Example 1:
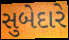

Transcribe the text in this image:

સુબેદારે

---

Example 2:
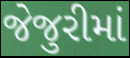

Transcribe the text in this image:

જેજુરીમાં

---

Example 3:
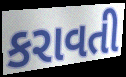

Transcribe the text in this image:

કરાવતી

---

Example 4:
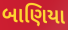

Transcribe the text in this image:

બાણિયા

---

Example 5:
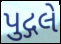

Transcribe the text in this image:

પુદ્ગલે